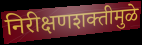
निरीक्षणशक्तीमुळे